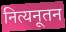
नित्यनूतन